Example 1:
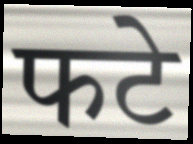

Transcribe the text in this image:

फटे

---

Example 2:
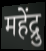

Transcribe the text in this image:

महेंद्रु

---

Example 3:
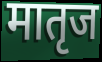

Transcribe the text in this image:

मातृज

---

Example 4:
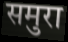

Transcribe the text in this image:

समुरा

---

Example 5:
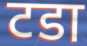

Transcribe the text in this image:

टडा